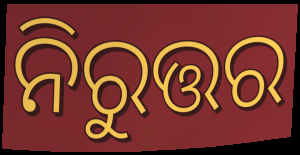
ନିରୁତ୍ତର